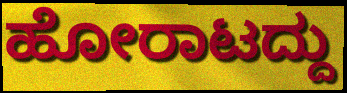
ಹೋರಾಟದ್ದು